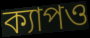
ক্যাপও